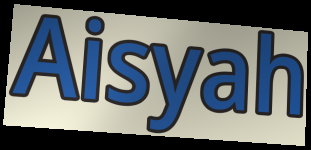
Aisyah